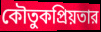
কৌতুকপ্রিয়তার